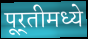
पूर्तीमध्ये